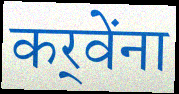
कर्वेंना